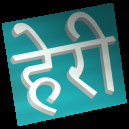
हेरी